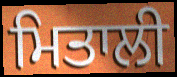
ਮਿਤਾਲੀ